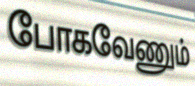
போகவேணும்